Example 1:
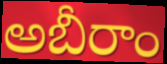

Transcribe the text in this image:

అబీరాం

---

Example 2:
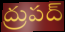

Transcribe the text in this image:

ద్రుపద్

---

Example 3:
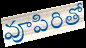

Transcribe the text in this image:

వూపిరితో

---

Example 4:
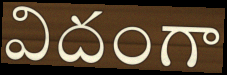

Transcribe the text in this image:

విదంగా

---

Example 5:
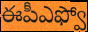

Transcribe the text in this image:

ఈపీఎఫ్వో